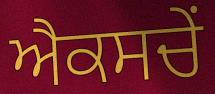
ਐਕਸਚੇਂ